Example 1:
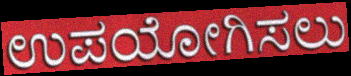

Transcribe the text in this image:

ಉಪಯೋಗಿಸಲು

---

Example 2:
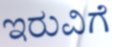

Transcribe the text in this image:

ಇರುವಿಗೆ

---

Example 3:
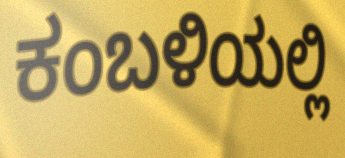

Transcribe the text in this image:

ಕಂಬಳಿಯಲ್ಲಿ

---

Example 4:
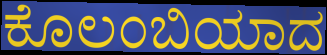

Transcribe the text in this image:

ಕೊಲಂಬಿಯಾದ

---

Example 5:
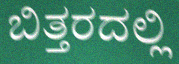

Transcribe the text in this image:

ಬಿತ್ತರದಲ್ಲಿ